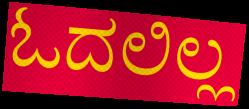
ಓದಲಿಲ್ಲ